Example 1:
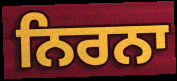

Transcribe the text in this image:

ਨਿਰਨਾ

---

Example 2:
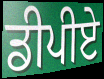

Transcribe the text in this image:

ਡੀਪੀਏ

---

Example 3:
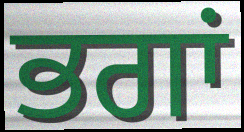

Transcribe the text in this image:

ਭਗਾਂ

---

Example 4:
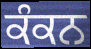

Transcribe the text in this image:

ਕੰਕਨ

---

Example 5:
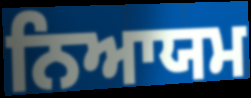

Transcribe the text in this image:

ਨਿਆਯਮ